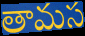
తామస